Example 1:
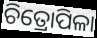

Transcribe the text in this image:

ଚିତ୍ରୋପିଳା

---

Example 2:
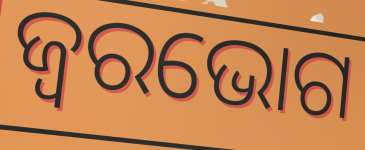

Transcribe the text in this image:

ଜ୍ୱରଭୋଗ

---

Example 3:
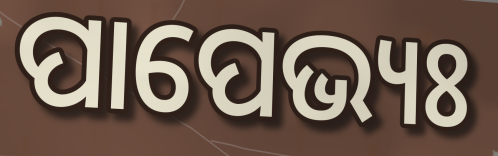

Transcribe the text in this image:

ପାପେଭ୍ୟଃ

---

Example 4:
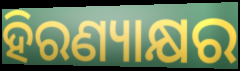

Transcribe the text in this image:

ହିରଣ୍ୟାକ୍ଷର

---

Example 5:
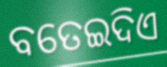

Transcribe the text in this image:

ବତେଇଦିଏ